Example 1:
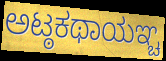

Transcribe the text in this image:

ಅಟ್ಠಕಥಾಯಞ್ಚ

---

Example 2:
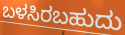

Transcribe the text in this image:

ಬಳಸಿರಬಹುದು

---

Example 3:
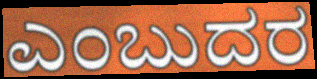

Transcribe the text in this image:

ಎಂಬುದರ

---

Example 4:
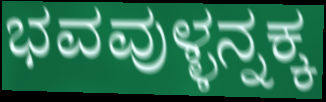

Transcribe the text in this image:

ಭವವುಳ್ಳನ್ನಕ್ಕ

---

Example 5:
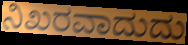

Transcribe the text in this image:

ನಿಖರವಾದುದು